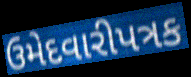
ઉમેદવારીપત્રક